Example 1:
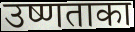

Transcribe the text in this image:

उष्णताका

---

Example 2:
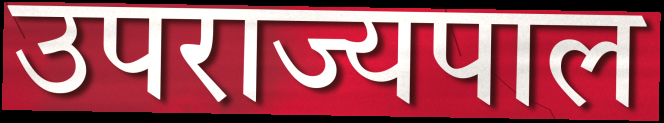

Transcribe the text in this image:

उपराज्यपाल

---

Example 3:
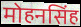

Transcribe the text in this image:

मोहनसिंह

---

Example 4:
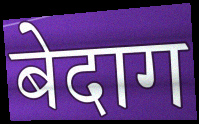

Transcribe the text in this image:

बेदाग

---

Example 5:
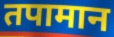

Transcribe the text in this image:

तपामान